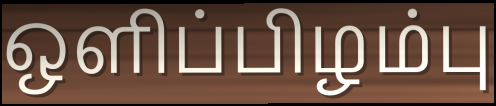
ஒளிப்பிழம்பு